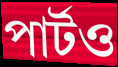
পার্টও